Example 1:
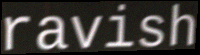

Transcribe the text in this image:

ravish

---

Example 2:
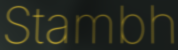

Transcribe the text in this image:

Stambh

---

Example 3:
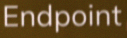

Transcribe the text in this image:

Endpoint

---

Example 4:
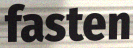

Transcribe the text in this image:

fasten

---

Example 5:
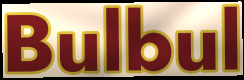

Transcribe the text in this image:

Bulbul